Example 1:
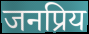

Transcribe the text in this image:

जनप्रिय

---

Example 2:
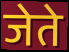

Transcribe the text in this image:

जेते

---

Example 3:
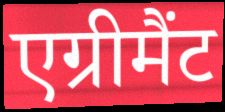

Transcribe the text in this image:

एग्रीमैंट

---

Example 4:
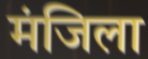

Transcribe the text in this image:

मंजिला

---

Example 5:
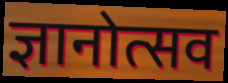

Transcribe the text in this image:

ज्ञानोत्सव